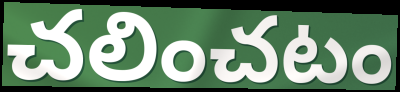
చలించటం